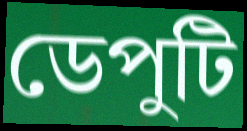
ডেপুটি